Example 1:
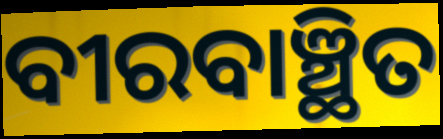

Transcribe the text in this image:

ବୀରବାଞ୍ଛିତ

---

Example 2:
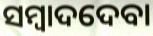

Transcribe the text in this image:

ସମ୍ବାଦଦେବା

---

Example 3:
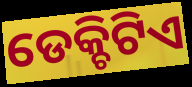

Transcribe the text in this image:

ଡେକ୍ଚିଟିଏ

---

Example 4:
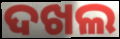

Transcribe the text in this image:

ଦଖଲ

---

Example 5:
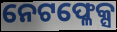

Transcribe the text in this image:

ନେଟଫ୍ଳେକ୍ସ